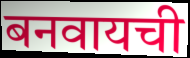
बनवायची